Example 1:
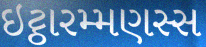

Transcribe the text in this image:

ઇટ્ઠારમ્મણસ્સ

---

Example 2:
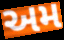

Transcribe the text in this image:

અમ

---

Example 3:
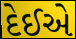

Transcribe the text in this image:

દેઈએ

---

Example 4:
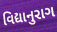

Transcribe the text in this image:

વિદ્યાનુરાગ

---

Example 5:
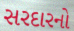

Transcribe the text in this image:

સરદારનો